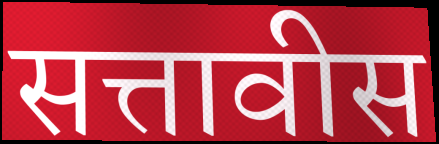
सत्तावीस